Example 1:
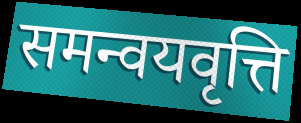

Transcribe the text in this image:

समन्वयवृत्ति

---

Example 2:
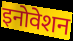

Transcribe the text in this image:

इनोवेशन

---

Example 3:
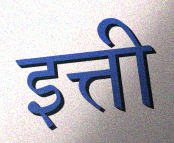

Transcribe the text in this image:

इत्ती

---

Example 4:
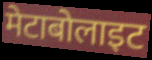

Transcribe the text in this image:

मेटाबोलाइट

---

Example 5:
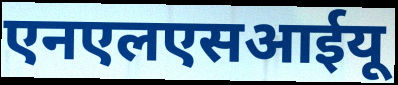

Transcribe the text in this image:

एनएलएसआईयू